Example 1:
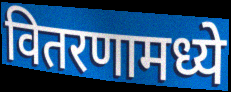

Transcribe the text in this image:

वितरणामध्ये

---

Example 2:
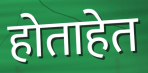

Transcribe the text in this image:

होताहेत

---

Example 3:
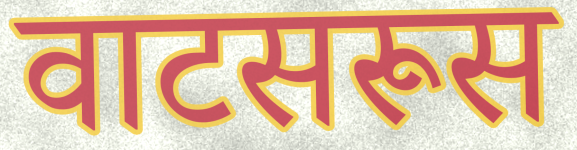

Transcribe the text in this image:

वाटसरूस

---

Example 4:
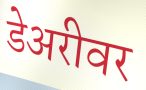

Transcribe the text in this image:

डेअरीवर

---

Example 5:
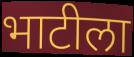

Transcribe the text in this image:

भाटीला